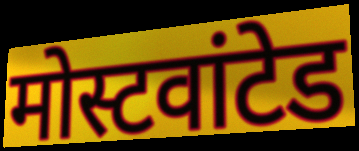
मोस्टवांटेड